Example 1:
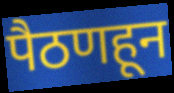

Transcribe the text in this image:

पैठणहून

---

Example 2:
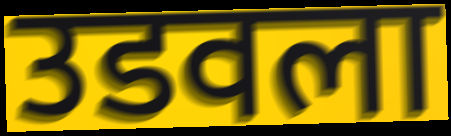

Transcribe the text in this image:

उडवला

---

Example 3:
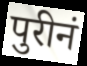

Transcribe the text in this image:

पुरीनं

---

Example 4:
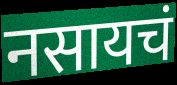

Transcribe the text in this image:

नसायचं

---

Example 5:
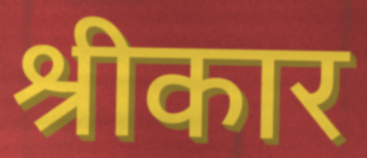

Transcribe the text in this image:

श्रीकार